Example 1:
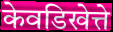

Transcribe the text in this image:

केवडिखेत्ते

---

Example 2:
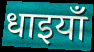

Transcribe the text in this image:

धाइयाँ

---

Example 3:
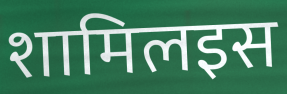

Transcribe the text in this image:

शामिलइस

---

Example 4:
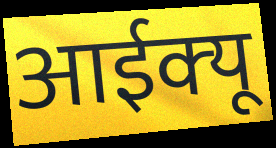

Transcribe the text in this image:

आईक्‍यू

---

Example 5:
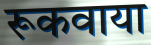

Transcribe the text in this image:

रूकवाया